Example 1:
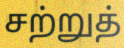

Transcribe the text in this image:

சற்றுத்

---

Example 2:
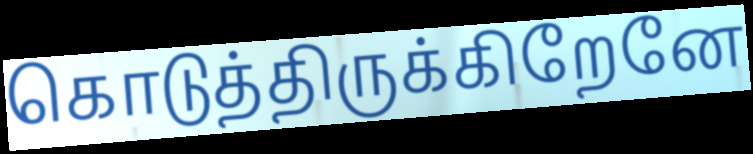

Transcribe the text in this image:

கொடுத்திருக்கிறேனே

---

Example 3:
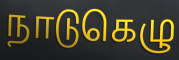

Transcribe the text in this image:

நாடுகெழு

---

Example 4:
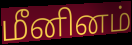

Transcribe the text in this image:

மீனினம்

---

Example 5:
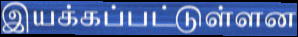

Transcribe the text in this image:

இயக்கப்பட்டுள்ளன